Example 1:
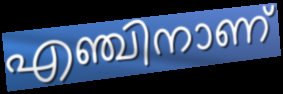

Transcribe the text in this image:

എഞ്ചിനാണ്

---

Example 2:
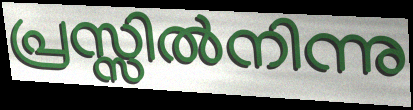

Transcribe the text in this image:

പ്രസ്സിൽനിന്നു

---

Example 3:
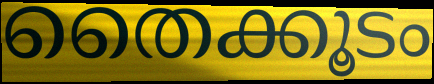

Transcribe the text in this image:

തൈക്കൂടം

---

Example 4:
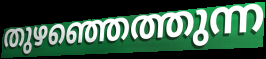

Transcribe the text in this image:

തുഴഞ്ഞെത്തുന്ന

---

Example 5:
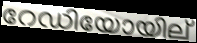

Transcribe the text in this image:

റേഡിയോയില്